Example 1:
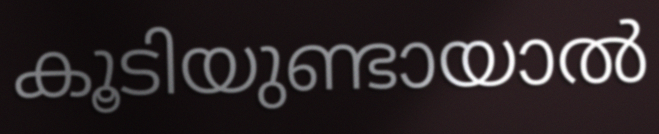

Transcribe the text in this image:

കൂടിയുണ്ടായാൽ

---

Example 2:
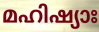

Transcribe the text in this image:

മഹിഷ്യാഃ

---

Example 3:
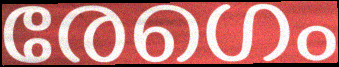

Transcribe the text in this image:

രേഗെം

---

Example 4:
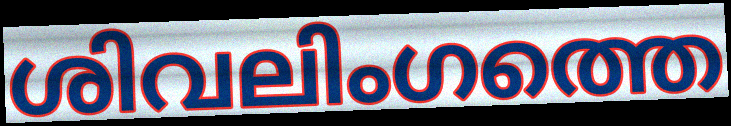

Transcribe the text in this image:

ശിവലിംഗത്തെ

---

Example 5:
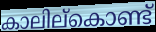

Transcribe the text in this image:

കാലില്കൊണ്ട്